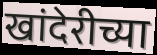
खांदेरीच्या